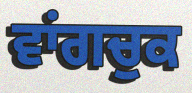
ਵਾਂਗਚੁਕ